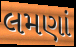
લમણાં